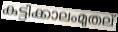
കുട്ടിക്കാലംമുതല്